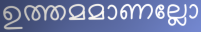
ഉത്തമമാണല്ലോ